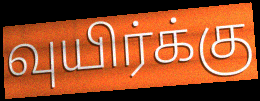
வுயிர்க்கு